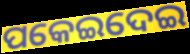
ପକେଇଦେଇ